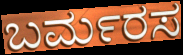
ಬರ್ಮರಸ